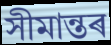
সীমান্তৰ